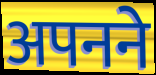
अपनने